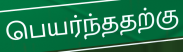
பெயர்ந்ததற்கு